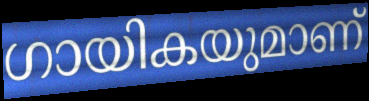
ഗായികയുമാണ്